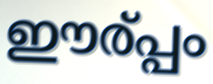
ഈര്പ്പം